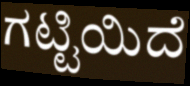
ಗಟ್ಟಿಯಿದೆ